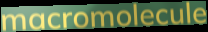
macromolecule